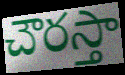
చౌరస్తా